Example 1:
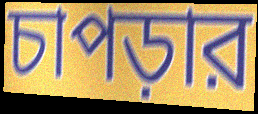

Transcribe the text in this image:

চাপড়ার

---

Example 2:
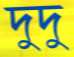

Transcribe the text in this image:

দুদু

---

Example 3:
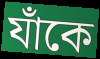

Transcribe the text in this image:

যাঁকে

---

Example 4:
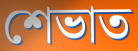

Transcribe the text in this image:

শেভাত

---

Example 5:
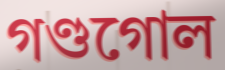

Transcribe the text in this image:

গণ্ডগোল